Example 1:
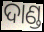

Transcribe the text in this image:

ଦାଣ୍ଡ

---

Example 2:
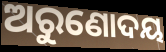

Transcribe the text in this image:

ଅରୁଣୋଦୟ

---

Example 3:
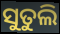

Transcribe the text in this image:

ସୁତୁଲି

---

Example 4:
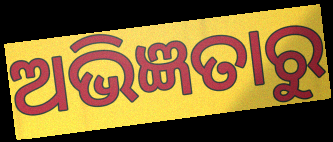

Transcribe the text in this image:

ଅଭିଜ୍ଞତାରୁ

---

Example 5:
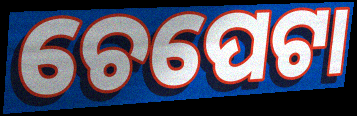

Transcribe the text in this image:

ଚେପେଟା